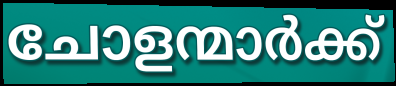
ചോളന്മാർക്ക്